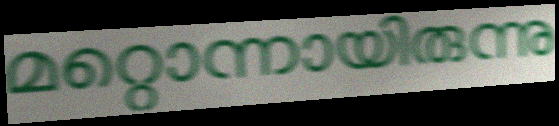
മറ്റൊന്നായിരുന്നു